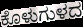
ಕೊಳುಗುಳದ